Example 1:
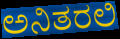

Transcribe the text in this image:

ಅನಿತರಲಿ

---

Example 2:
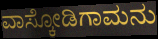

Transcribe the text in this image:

ವಾಸ್ಕೋಡಿಗಾಮನು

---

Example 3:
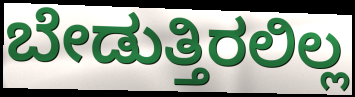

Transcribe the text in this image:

ಬೇಡುತ್ತಿರಲಿಲ್ಲ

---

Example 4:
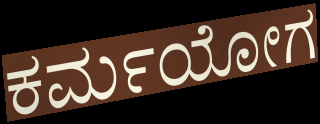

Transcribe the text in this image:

ಕರ್ಮಯೋಗ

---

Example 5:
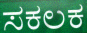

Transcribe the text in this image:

ಸಕಲಕ